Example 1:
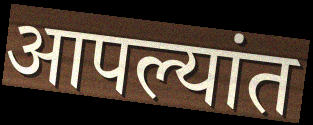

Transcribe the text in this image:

आपल्यांत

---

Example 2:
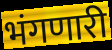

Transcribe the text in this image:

भंगणारी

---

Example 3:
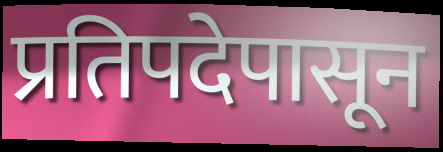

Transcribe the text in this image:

प्रतिपदेपासून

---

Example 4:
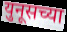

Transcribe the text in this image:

युनूसच्या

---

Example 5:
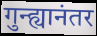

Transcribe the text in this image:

गुन्ह्यानंतर